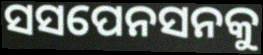
ସସପେନସନକୁ